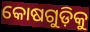
କୋଷଗୁଡ଼ିକୁ